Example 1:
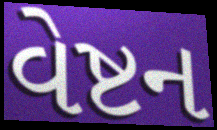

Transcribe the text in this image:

વેષ્ટન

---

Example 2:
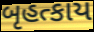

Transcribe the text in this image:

બૃહત્કાય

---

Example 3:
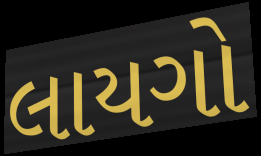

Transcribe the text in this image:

લાયગો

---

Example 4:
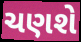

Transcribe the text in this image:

ચણશે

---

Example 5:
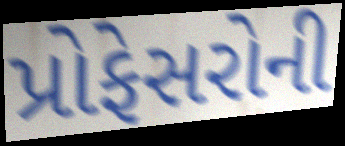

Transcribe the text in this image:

પ્રોફેસરોની